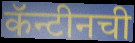
कॅन्टीनची